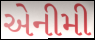
એનીમી